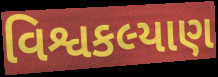
વિશ્વકલ્યાણ